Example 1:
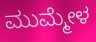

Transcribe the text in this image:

ಮುಮ್ಮೇಳ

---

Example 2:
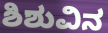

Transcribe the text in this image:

ಶಿಶುವಿನ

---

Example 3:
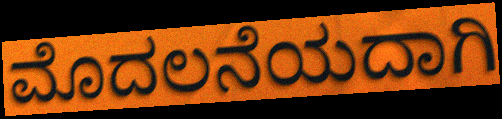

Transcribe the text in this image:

ಮೊದಲನೆಯದಾಗಿ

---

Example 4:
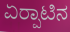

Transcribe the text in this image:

ಏರ‍್ಪಾಟಿನ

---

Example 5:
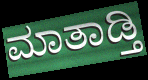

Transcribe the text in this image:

ಮಾತಾಡ್ತಿ